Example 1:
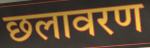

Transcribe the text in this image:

छलावरण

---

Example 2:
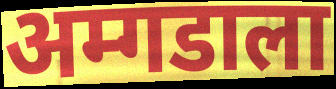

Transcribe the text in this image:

अम्गडाला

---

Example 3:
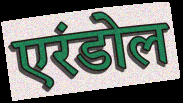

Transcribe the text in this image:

एरंडोल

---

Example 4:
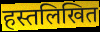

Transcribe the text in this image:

हस्तलिखित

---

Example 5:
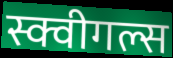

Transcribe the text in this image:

स्क्वीगल्स